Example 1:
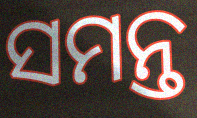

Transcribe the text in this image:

ସମନ୍ତ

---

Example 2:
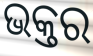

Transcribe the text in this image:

ଭକ୍ତର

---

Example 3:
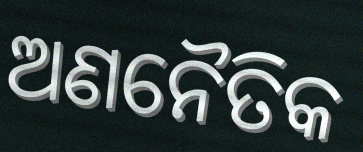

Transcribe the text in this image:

ଅଣନୈତିକ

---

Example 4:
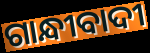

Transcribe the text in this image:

ଗାନ୍ଧୀବାଦୀ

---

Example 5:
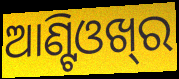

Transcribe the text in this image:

ଆଣ୍ଟିଓଖ୍‍ର